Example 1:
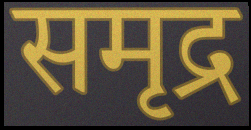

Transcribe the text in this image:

समृद्र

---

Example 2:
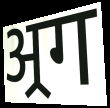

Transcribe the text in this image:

अ्रग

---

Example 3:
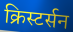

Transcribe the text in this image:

क्रिस्टर्सन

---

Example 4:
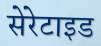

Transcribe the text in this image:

सेरेटाइड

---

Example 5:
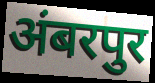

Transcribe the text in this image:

अंबरपुर